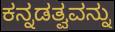
ಕನ್ನಡತ್ವವನ್ನು